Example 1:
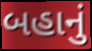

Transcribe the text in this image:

બહાનું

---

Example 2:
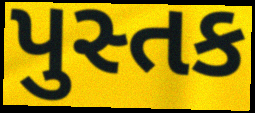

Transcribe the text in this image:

પુસ્તક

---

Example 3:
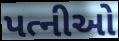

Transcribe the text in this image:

પત્નીઓ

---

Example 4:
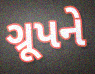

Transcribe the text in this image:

ગ્રૂપને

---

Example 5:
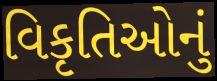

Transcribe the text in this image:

વિકૃતિઓનું